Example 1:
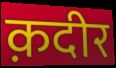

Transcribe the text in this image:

क़दीर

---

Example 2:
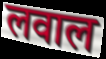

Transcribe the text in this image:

लवाल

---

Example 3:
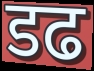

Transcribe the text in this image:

डढ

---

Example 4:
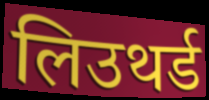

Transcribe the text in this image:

लिउथर्ड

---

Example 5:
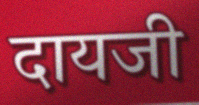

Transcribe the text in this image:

दायजी